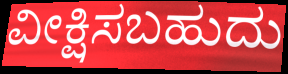
ವೀಕ್ಷಿಸಬಹುದು